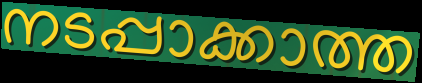
നടപ്പാക്കാത്ത